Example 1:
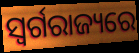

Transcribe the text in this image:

ସ୍ୱର୍ଗରାଜ୍ୟରେ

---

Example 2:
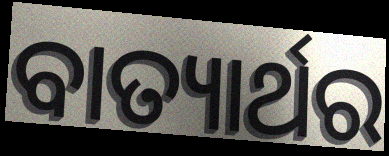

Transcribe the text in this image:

ବାତ୍ୟାର୍ଥର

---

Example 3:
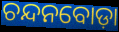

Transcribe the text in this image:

ଚନ୍ଦନବୋଡ଼ା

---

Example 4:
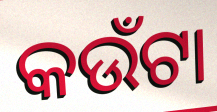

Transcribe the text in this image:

କଉଁଟା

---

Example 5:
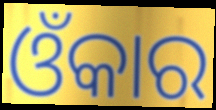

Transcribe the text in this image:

ଓଁକାର